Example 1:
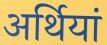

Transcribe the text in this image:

अर्थियां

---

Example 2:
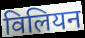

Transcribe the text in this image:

विलियन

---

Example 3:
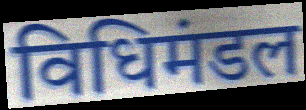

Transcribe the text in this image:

विधिमंडल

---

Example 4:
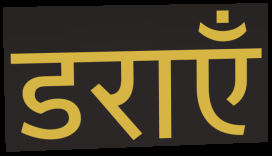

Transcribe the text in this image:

डराएँ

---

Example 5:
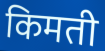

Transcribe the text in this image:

किमती